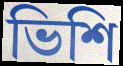
ভিশি